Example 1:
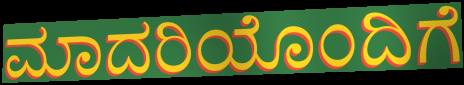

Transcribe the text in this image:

ಮಾದರಿಯೊಂದಿಗೆ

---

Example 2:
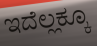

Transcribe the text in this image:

ಇದೆಲ್ಲಕ್ಕೂ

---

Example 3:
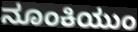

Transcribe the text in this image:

ನೂಂಕಿಯುಂ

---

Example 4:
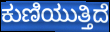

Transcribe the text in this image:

ಕುಣಿಯುತ್ತಿದೆ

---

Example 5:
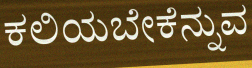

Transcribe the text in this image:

ಕಲಿಯಬೇಕೆನ್ನುವ